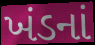
ખંડનાં